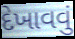
દેખાવવું